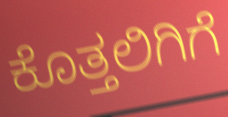
ಕೊತ್ತಲಿಗಿಗೆ